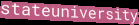
stateuniversity